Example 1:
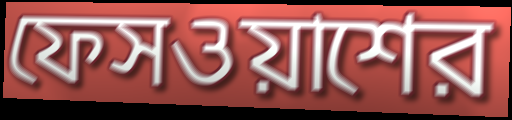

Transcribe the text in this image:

ফেসওয়াশের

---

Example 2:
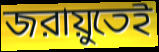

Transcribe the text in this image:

জরায়ুতেই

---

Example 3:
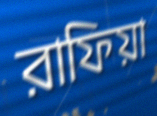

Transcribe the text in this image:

রাফিয়া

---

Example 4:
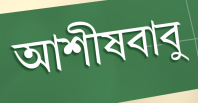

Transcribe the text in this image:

আশীষবাবু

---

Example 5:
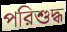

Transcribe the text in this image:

পরিশুদ্ধ